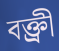
বক্ত্রী